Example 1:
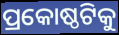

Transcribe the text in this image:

ପ୍ରକୋଷ୍ଠଟିକୁ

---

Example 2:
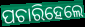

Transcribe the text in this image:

ପଚାରିହେଲେ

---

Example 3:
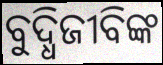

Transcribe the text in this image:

ବୁଦ୍ଧିଜୀବିଙ୍କ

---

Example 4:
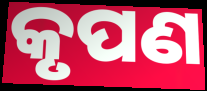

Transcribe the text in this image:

କୃପଣ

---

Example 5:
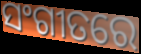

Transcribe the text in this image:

ସଂଗୀତରେ